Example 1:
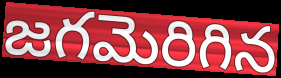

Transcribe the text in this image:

జగమెరిగిన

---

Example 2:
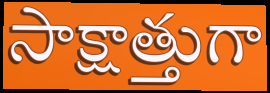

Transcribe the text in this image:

సాక్షాత్తుగా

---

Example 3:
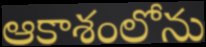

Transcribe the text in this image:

ఆకాశంలోను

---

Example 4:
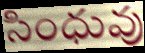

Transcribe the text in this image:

సింధువు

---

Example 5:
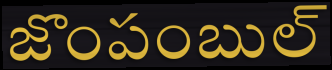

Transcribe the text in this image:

జొంపంబుల్